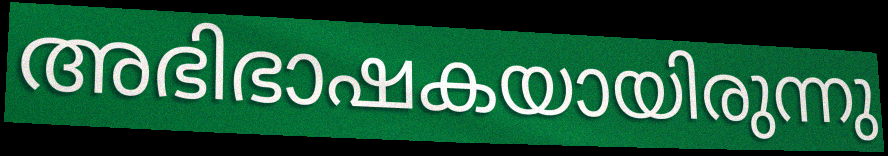
അഭിഭാഷകയായിരുന്നു